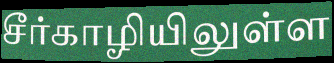
சீர்காழியிலுள்ள